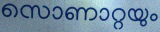
സൊണാറ്റയും